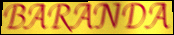
BARANDA